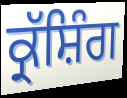
ਕ੍ਰੱਸ਼ਿੰਗ